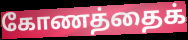
கோணத்தைக்